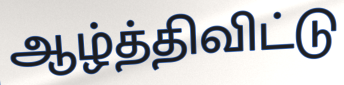
ஆழ்த்திவிட்டு